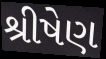
શ્રીષેણ